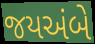
જયઅંબે